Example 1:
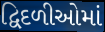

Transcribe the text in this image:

દ્વિદળીઓમાં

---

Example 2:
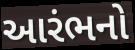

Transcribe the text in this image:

આરંભનો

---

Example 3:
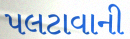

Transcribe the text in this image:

પલટાવાની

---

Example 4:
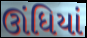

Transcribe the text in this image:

ઊંધિયાં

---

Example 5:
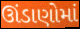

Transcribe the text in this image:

ઊંડાણોમાં